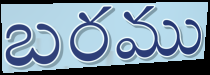
బరము